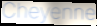
Cheyenne